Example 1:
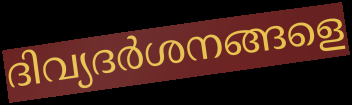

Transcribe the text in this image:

ദിവ്യദർശനങ്ങളെ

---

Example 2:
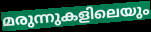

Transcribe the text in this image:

മരുന്നുകളിലെയും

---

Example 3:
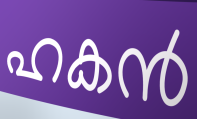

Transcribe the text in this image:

ഹകൻ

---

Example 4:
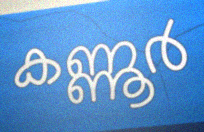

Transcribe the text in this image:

കണ്ണൂർ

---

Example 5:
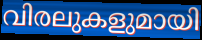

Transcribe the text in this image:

വിരലുകളുമായി